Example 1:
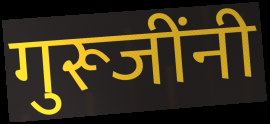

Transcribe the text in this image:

गुरूजींनी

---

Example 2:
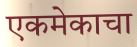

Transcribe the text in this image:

एकमेकाचा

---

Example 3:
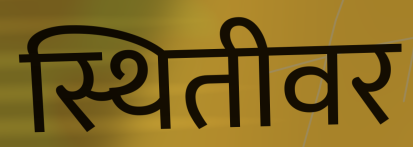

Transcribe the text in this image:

स्थितीवर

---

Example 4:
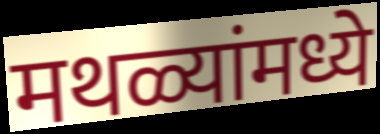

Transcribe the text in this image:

मथळ्यांमध्ये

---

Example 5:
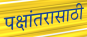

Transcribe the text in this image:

पक्षांतरासाठी